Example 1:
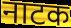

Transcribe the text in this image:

नाटक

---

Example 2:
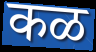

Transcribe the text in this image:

कळ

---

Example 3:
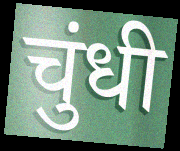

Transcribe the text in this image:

चुंधी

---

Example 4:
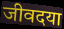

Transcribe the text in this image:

जीवदया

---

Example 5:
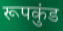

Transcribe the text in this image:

रूपकुंड